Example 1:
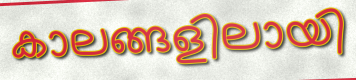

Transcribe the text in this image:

കാലങ്ങളിലായി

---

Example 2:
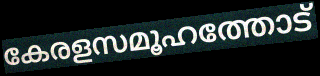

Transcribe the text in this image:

കേരളസമൂഹത്തോട്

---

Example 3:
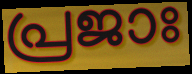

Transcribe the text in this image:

പ്രജാഃ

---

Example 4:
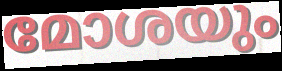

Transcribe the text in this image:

മോശയും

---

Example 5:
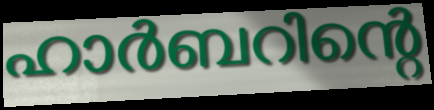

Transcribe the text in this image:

ഹാർബറിന്റെ